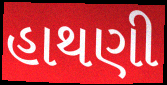
હાથણી